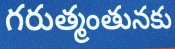
గరుత్మంతునకు